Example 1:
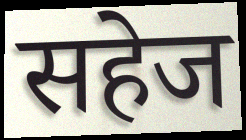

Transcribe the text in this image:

सहेज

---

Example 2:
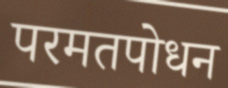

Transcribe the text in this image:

परमतपोधन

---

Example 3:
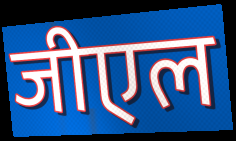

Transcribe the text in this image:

जीएल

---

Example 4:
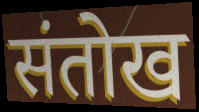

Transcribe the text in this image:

संतोख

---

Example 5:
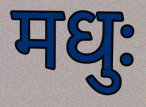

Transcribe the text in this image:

मधुः